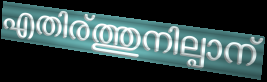
എതിര്ത്തുനില്പാന്